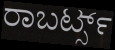
ರಾಬರ್ಟ್ಸ್